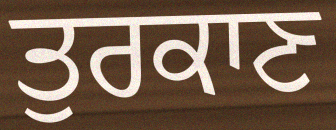
ਤੁਰਕਾਣ